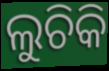
ଲୁଚିକି